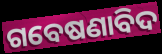
ଗବେଷଣାବିଦ